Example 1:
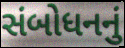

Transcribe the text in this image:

સંબોધનનું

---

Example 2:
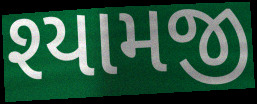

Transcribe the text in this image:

શ્યામજી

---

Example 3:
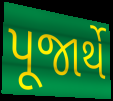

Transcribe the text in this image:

પૂજાર્થે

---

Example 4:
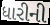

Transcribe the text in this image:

ધારીની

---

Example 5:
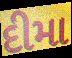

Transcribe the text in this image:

દીમા